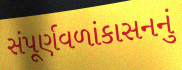
સંપૂર્ણવળાંકાસનનું